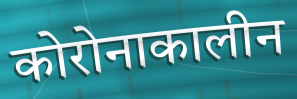
कोरोनाकालीन